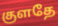
குளதே